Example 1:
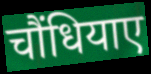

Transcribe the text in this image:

चौंधियाए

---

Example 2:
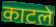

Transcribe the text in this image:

काटले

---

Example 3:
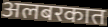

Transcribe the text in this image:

अलबरकात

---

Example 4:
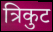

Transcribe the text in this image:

त्रिकुट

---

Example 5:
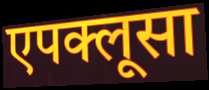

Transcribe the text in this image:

एपक्लूसा